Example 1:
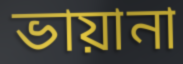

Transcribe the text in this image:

ভায়ানা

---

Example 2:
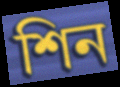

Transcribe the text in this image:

শিন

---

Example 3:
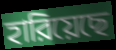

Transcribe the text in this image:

হারিয়েছে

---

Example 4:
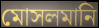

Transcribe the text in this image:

মোসলমানি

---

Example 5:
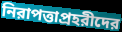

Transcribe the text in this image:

নিরাপত্তাপ্রহরীদের